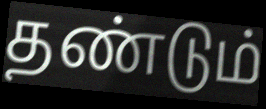
தண்டும்